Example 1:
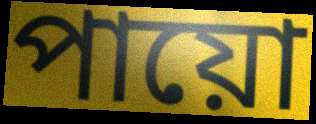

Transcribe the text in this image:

পায়ো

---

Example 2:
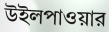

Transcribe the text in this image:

উইলপাওয়ার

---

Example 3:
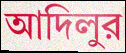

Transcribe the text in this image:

আদিলুর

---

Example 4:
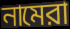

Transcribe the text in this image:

নামেরা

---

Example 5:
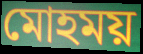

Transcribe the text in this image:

মোহময়